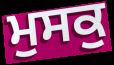
ਮੁਸਕੁ